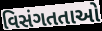
વિસંગતતાઓ